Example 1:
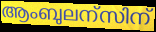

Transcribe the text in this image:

ആംബുലന്സിന്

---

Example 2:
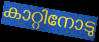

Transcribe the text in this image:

കാറ്റിനോടു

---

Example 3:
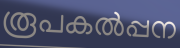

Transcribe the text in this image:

രൂപകൽപ്പന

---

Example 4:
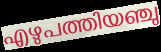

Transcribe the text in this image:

എഴുപത്തിയഞ്ചു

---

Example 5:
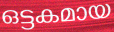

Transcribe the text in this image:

ഒട്ടകമായ